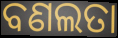
ବଣଲତା